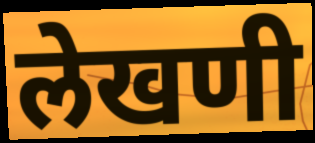
लेखणी